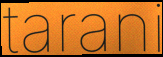
tarani